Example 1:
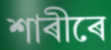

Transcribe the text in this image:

শাৰীৰে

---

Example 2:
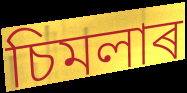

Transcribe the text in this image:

চিমলাৰ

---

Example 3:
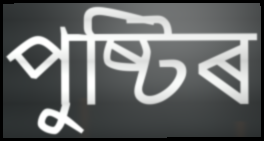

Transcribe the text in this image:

পুষ্টিৰ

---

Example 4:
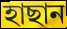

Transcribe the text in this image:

হাছান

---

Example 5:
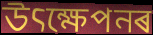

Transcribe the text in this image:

উৎক্ষেপনৰ